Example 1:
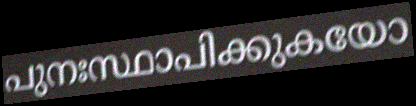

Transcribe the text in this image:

പുനഃസ്ഥാപിക്കുകയോ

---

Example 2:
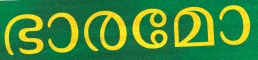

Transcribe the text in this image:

ഭാരമോ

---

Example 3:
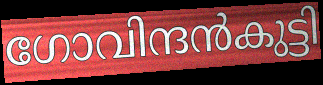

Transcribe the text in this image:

ഗോവിന്ദൻകുട്ടി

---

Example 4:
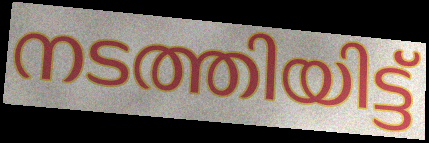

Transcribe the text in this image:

നടത്തിയിട്ട്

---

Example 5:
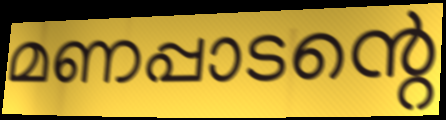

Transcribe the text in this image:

മണപ്പാടന്റെ